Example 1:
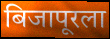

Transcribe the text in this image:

बिजापूरला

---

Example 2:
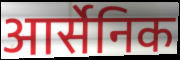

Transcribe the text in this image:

आर्सेनिक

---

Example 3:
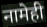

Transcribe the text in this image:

नामेही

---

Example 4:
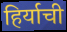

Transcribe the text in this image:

हिर्याची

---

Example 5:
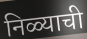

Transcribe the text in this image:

निळ्याची